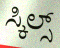
ಸ್ಕಿಲ್ಸ್